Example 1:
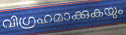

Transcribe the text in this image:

വിഗ്രഹമാക്കുകയും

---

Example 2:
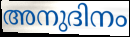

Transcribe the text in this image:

അനുദിനം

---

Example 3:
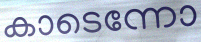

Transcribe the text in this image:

കാടെന്നോ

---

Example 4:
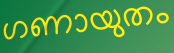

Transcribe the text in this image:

ഗണായുതം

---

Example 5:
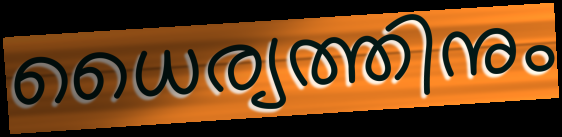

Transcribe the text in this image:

ധൈര്യത്തിനും